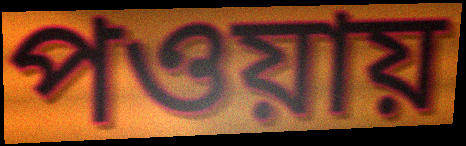
পওয়ায়